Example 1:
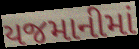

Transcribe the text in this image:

યજમાનીમાં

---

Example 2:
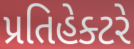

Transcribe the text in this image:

પ્રતિહેક્ટરે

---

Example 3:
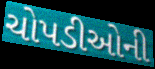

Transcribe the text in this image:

ચોપડીઓની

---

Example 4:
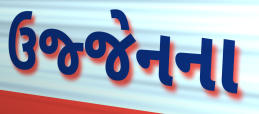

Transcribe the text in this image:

ઉજ્જેનના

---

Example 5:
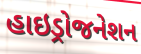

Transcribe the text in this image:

હાઇડ્રોજનેશન